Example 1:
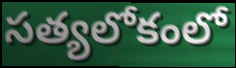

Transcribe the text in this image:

సత్యలోకంలో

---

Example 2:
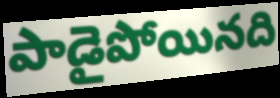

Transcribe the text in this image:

పాడైపోయినది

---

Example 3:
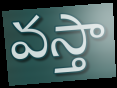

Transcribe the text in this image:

వస్తా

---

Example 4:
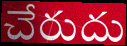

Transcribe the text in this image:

చేరుదు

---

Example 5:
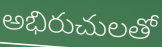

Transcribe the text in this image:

అభిరుచులతో